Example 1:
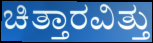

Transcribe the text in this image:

ಚಿತ್ತಾರವಿತ್ತು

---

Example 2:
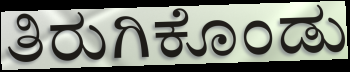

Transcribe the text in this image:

ತಿರುಗಿಕೊಂಡು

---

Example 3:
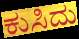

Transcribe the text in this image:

ಕುಸಿದು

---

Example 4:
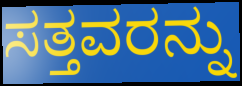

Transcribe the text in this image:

ಸತ್ತವರನ್ನು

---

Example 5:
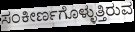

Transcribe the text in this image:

ಸಂಕೀರ್ಣಗೊಳ್ಳುತ್ತಿರುವ